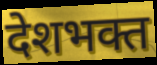
देशभक्त